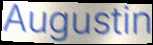
Augustin